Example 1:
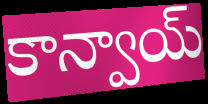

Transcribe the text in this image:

కాన్వాయ్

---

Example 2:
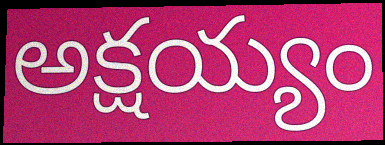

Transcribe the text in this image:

అక్షయ్యం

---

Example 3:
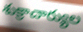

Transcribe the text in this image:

శుక్రాచార్యుల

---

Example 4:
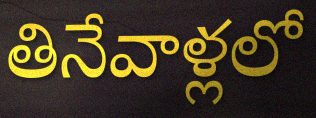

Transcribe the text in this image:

తినేవాళ్లలో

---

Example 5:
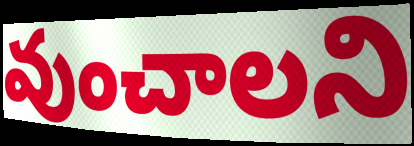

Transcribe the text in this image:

వుంచాలని